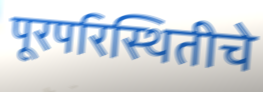
पूरपरिस्थितीचे